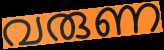
വരുണ